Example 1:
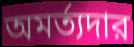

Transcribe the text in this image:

অমর্ত্যদার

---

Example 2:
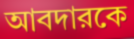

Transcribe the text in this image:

আবদারকে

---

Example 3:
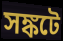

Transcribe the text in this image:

সঙ্কটে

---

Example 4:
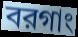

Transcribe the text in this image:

বরগাং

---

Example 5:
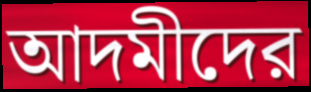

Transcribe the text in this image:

আদমীদের